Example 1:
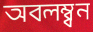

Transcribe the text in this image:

অবলম্ব্বন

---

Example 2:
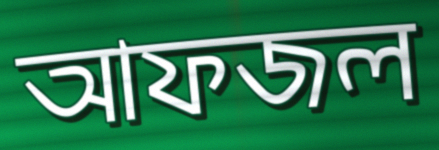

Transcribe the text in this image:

আফজল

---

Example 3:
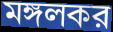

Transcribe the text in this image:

মঙ্গলকর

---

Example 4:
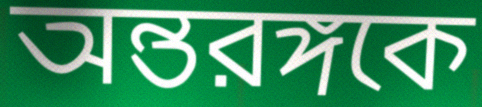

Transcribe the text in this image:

অন্তরঙ্গকে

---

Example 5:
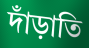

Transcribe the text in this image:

দাঁড়াতি